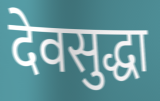
देवसुद्धा